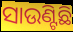
ସାଉଣ୍ଟିଛି